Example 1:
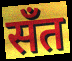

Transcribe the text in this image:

सँत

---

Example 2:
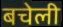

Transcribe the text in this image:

बचेली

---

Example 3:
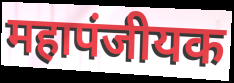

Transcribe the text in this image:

महापंजीयक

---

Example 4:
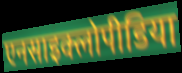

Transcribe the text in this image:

एनसाइक्लोपीडिया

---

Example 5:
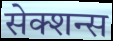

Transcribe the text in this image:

सेक्शन्स